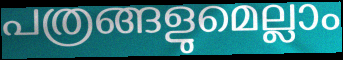
പത്രങ്ങളുമെല്ലാം